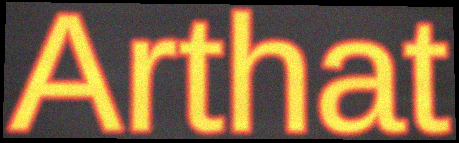
Arthat